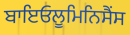
ਬਾਇਓਲੂਮਿਨਿਸੈਂਸ